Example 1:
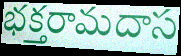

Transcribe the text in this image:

భక్తరామదాస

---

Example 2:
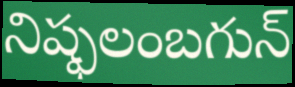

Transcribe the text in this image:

నిష్ఫలంబగున్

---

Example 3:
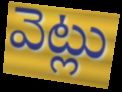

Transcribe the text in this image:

వెట్లు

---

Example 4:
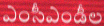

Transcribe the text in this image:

ఎంసీఎండీల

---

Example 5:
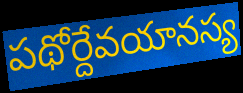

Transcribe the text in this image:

పథోర్దేవయానస్య